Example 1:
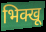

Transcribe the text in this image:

भिक्खू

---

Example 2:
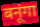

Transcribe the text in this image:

बनूंगा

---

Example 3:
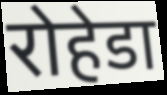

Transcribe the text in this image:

रोहेडा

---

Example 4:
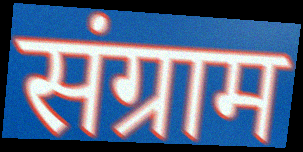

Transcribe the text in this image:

संग्राम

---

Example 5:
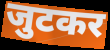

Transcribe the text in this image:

जुटकर